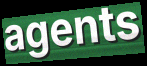
agents